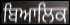
ਬਿਆਲਿਕ